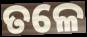
ତଳେ